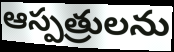
ఆస్పత్రులను